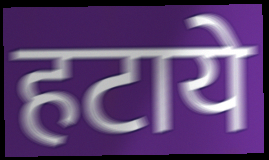
हटाये